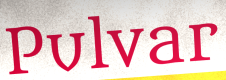
Pulvar